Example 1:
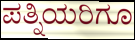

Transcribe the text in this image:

ಪತ್ನಿಯರಿಗೂ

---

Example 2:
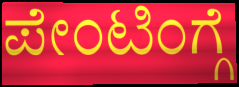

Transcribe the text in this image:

ಪೇಂಟಿಂಗ್ಗೆ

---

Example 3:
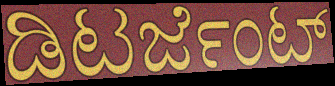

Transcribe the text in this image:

ಡಿಟರ್ಜೆಂಟ್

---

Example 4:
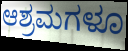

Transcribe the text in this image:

ಆಶ್ರಮಗಳೂ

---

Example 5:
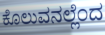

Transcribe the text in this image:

ಕೊಲುವನಲ್ಲೆಂದ